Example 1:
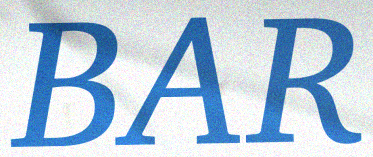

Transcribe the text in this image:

BAR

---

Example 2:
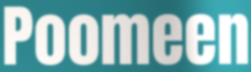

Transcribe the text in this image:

Poomeen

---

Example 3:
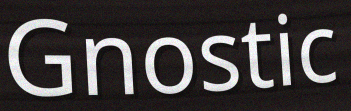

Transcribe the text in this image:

Gnostic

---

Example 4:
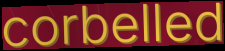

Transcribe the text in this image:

corbelled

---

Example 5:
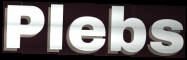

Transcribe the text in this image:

Plebs